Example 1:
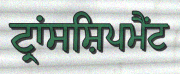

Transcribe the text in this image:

ਟ੍ਰਾਂਸਸ਼ਿਪਮੈਂਟ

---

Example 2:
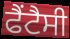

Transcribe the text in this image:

ਫੈਂਟੈਸੀ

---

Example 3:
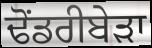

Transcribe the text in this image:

ਢੋਂਡਰੀਬੇੜਾ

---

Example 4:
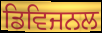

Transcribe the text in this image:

ਡਿਵਿਜਨਲ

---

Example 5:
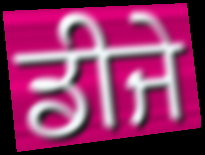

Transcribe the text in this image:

ਡੀਜੇ